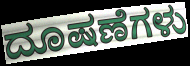
ದೂಷಣೆಗಳು